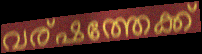
വര്ഷത്തേക്ക്